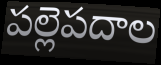
పల్లెపదాల